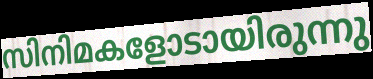
സിനിമകളോടായിരുന്നു